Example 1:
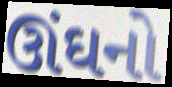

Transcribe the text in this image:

ઊંઘનો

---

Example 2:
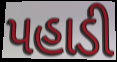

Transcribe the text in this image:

પહાડી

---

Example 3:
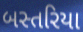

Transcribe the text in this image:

બસ્તરિયા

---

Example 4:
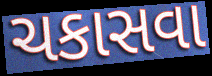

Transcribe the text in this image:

ચકાસવા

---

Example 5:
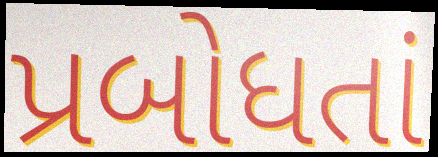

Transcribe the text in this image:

પ્રબોધતાં